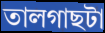
তালগাছটা